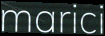
marici